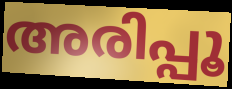
അരിപ്പൂ